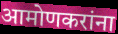
आमोणकरांना